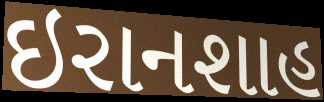
ઇરાનશાહ